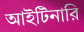
আইটিনারি